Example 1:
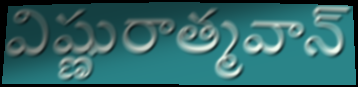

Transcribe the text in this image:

విష్ణురాత్మవాన్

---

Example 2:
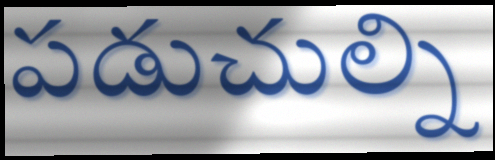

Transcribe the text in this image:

పడుచుల్ని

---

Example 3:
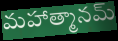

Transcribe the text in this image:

మహాత్మానమ్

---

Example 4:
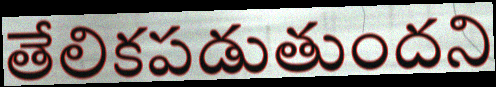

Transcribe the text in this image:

తేలికపడుతుందని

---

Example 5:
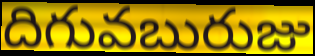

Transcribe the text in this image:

దిగువబురుజు